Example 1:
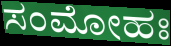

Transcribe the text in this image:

ಸಂಮೋಹಃ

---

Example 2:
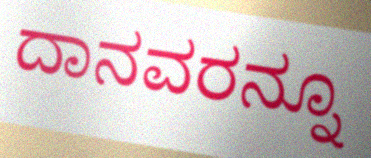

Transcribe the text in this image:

ದಾನವರನ್ನೂ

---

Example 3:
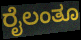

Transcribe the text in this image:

ರೈಲಂತೂ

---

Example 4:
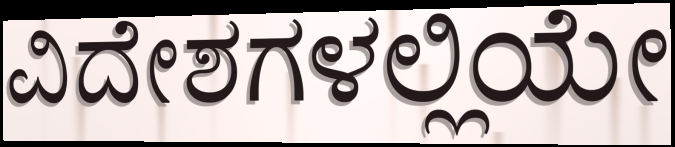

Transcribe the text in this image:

ವಿದೇಶಗಳಲ್ಲಿಯೇ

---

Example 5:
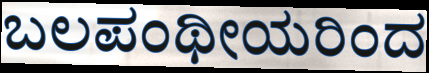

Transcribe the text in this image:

ಬಲಪಂಥೀಯರಿಂದ